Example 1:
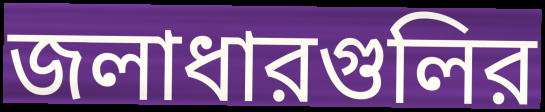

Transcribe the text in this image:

জলাধারগুলির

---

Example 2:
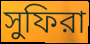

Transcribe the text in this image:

সুফিরা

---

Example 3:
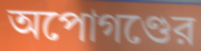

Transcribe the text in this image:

অপোগণ্ডের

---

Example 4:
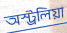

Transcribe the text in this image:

অস্ট্রলিয়া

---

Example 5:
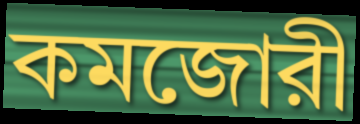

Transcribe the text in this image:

কমজোরী